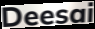
Deesai